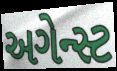
અગેન્સ્ટ